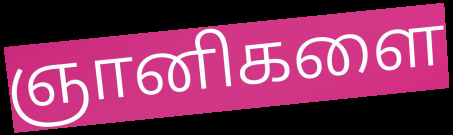
ஞானிகளை